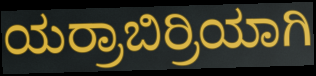
ಯರ್ರಾಬಿರ್ರಿಯಾಗಿ